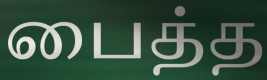
பைத்த